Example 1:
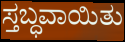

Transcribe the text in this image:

ಸ್ತಬ್ಧವಾಯಿತು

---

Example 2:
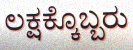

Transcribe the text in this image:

ಲಕ್ಷಕ್ಕೊಬ್ಬರು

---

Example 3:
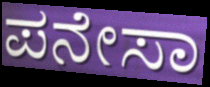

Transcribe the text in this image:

ಪನೇಸಾ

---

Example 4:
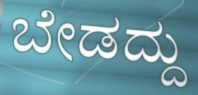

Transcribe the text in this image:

ಬೇಡದ್ದು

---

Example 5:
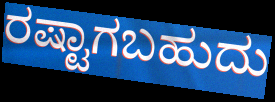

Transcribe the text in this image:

ರಷ್ಟಾಗಬಹುದು